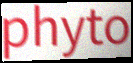
phyto